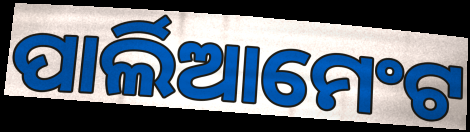
ପାର୍ଲିଆମେଂଟ